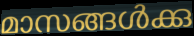
മാസങ്ങൾക്കു